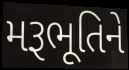
મરૂભૂતિને